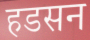
हडसन